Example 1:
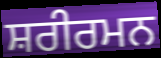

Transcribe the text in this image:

ਸ਼ਰੀਰਮਨ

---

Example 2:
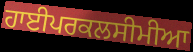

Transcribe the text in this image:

ਹਾਈਪਰਕਲਸੀਮੀਆ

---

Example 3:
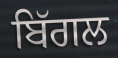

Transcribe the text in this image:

ਬਿੱਗਲ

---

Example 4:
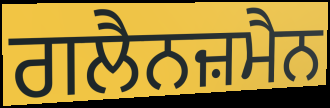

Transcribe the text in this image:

ਗਲੈਨਜ਼ਮੈਨ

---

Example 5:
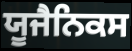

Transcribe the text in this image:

ਯੂਜੈਨਿਕਸ